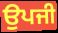
ਉਪਜੀ